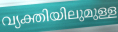
വ്യക്തിയിലുമുള്ള